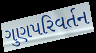
ગુણપરિવર્તન